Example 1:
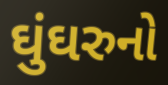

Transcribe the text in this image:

ઘુંઘરુનો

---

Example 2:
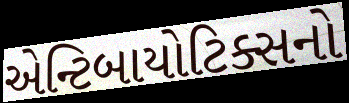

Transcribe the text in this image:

એન્ટિબાયોટિક્સનો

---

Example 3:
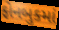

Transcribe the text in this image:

ફોનબુકમાં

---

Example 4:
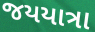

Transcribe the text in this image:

જયયાત્રા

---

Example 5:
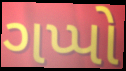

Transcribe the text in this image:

ગપ્પો